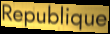
Republique